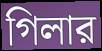
গিলার